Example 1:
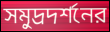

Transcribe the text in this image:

সমুদ্রদর্শনের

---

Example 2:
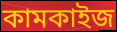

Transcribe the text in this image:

কামকাইজ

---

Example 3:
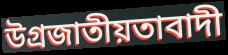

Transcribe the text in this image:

উগ্রজাতীয়তাবাদী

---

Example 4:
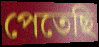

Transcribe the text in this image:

পেতেছি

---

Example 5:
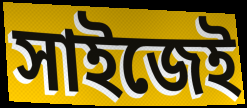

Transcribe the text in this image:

সাইজেই